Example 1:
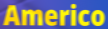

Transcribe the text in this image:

Americo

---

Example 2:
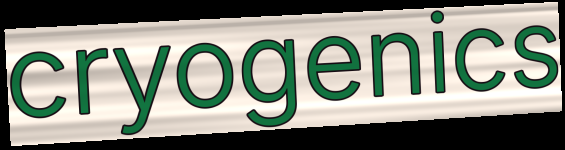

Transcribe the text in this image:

cryogenics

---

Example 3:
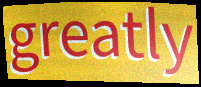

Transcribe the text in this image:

greatly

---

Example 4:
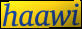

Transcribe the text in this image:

haawi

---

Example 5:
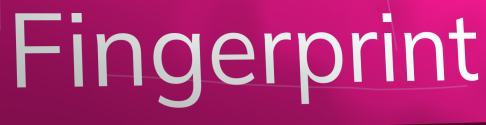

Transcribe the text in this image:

Fingerprint